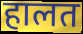
ह़ालत